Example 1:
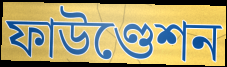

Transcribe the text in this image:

ফাউণ্ডেশন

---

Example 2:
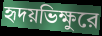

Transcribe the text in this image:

হৃদয়ভিক্ষুরে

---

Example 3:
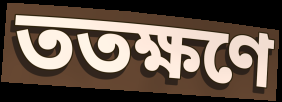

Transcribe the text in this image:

ততক্ষণে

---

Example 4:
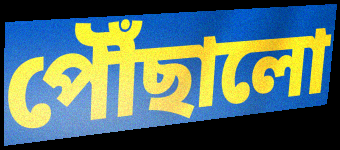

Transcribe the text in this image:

পৌঁছালো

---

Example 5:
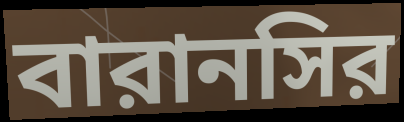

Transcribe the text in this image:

বারানসির